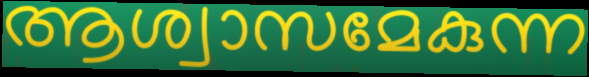
ആശ്വാസമേകുന്ന